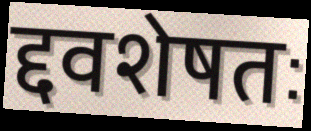
द्दवशेषतः